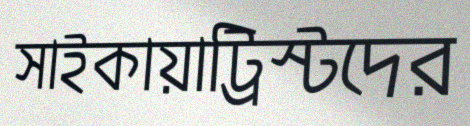
সাইকায়াট্রিস্টদের